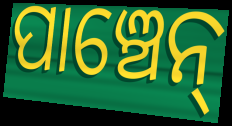
ପାଞ୍ଚେନ୍